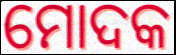
ମୋଦକ